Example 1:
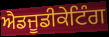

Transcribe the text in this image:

ਐਡਜੂਡੀਕੇਟਿੰਗ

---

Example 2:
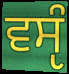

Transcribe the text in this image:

ਵਸੵੰ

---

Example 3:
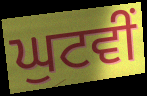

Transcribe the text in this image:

ਘੁਟਵੀਂ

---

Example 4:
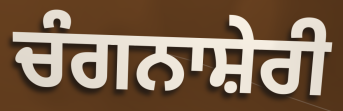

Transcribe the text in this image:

ਚੰਗਨਾਸ਼ੇਰੀ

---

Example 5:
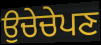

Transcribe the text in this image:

ਉਚੇਚੇਪਣ